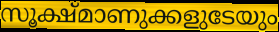
സൂക്ഷ്മാണുക്കളുടേയും